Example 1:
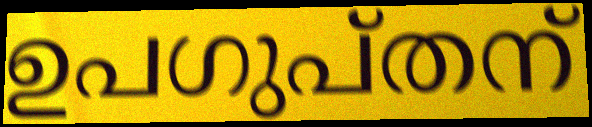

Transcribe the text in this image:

ഉപഗുപ്തന്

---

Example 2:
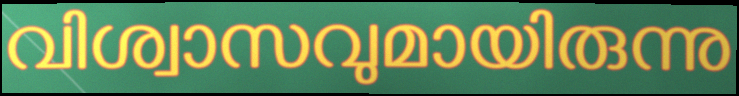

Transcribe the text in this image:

വിശ്വാസവുമായിരുന്നു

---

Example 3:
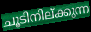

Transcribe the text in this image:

ചൂടിനില്ക്കുന്ന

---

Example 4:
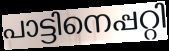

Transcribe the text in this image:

പാട്ടിനെപ്പറ്റി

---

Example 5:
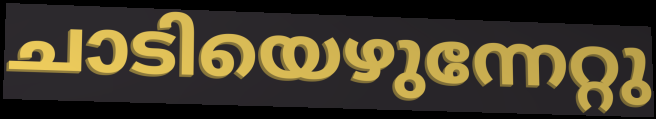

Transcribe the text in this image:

ചാടിയെഴുന്നേറ്റു